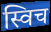
स्विच